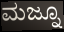
ಮಜ್ನೂ